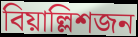
বিয়াল্লিশজন